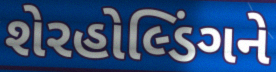
શેરહોલ્ડિંગને